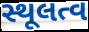
સ્થૂલત્વ